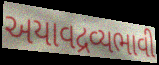
અયાવદ્રવ્યભાવી